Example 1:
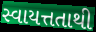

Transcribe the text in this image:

સ્વાયત્તતાથી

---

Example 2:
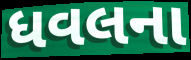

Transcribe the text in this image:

ધવલના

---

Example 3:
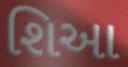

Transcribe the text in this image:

શિઆ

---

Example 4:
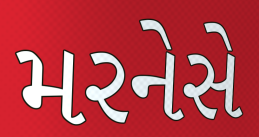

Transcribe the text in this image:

મરનેસે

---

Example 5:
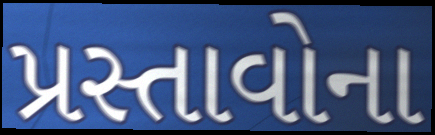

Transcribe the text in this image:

પ્રસ્તાવોના